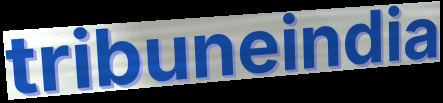
tribuneindia